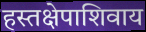
हस्तक्षेपाशिवाय